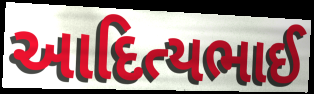
આદિત્યભાઈ